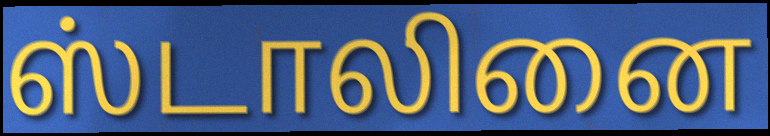
ஸ்டாலினை